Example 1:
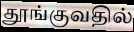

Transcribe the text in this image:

தூங்குவதில்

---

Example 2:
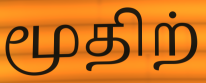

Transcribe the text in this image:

மூதிற்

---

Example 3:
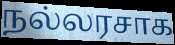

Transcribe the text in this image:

நல்லரசாக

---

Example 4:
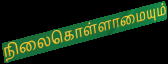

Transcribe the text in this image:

நிலைகொள்ளாமையும்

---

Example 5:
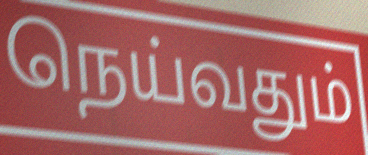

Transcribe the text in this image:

நெய்வதும்